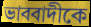
ভাববাদীকে